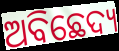
ଅବିଛେଦ୍ୟ